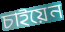
চাইয়েন